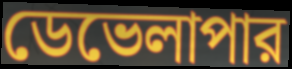
ডেভেলাপার